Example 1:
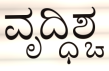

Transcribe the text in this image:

ವೃದ್ಧಿಶ್ಚ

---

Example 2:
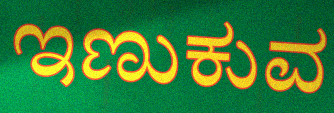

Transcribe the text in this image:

ಇಣುಕುವ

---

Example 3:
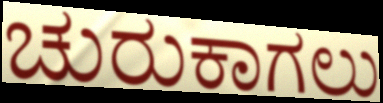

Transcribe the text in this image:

ಚುರುಕಾಗಲು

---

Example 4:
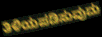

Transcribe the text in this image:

ತಿಳಿಯಪಡಿಸುವುದು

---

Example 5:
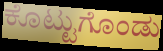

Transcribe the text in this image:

ಕೊಟ್ಟುಗೊಂಡು